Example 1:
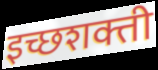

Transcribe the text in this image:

इच्छशक्ती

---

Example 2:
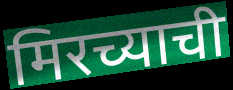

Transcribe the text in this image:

मिरच्याची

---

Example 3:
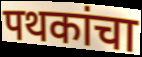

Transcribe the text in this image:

पथकांचा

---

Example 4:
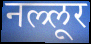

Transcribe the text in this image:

नल्लूर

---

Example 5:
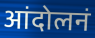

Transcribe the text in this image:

आंदोलनं